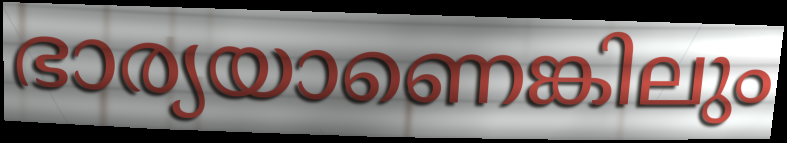
ഭാര്യയാണെങ്കിലും